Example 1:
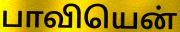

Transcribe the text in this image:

பாவியென்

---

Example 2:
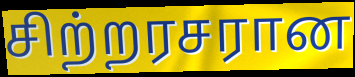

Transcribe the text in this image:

சிற்றரசரான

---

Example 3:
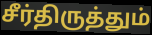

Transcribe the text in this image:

சீர்திருத்தும்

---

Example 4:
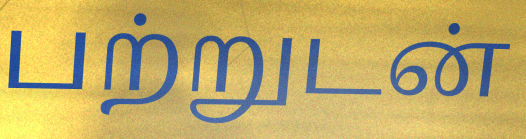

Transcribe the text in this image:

பற்றுடன்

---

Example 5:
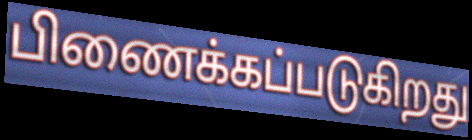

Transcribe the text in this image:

பிணைக்கப்படுகிறது